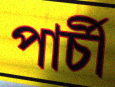
পাৰ্চী